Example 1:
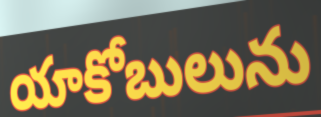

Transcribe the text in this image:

యాకోబులును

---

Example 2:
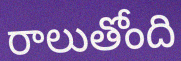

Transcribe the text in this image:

రాలుతోంది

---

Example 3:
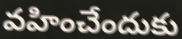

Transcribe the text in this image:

వహించేందుకు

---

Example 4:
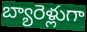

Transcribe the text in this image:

బ్యారెళ్లుగా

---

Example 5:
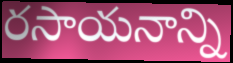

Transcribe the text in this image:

రసాయనాన్ని